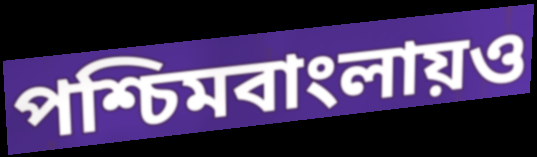
পশ্চিমবাংলায়ও